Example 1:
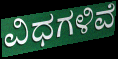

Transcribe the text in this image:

ವಿಧಗಳಿವೆ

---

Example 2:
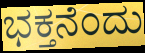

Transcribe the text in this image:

ಭಕ್ತನೆಂದು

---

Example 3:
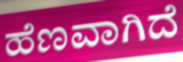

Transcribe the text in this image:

ಹೆಣವಾಗಿದೆ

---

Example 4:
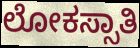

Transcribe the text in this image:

ಲೋಕಸ್ಸಾತಿ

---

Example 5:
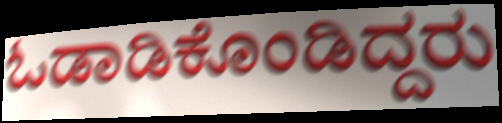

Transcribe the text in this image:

ಓಡಾಡಿಕೊಂಡಿದ್ದರು